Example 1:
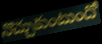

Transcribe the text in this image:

నొచ్చుకుంటుందో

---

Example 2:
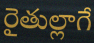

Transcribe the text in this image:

రైతుల్లాగే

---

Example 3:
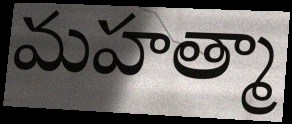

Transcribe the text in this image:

మహత్మా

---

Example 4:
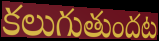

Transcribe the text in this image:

కలుగుతుందట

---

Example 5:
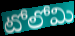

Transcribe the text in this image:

టోలోమి